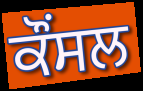
ਕੌਂਸਲ